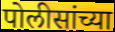
पोलीसांच्या